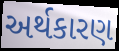
અર્થકારણ